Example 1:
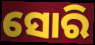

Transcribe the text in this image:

ସୋରି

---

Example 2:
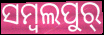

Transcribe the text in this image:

ସମ୍ବଲପୁର୍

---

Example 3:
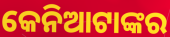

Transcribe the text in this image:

କେନିଆଟାଙ୍କର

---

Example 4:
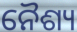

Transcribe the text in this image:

ନୈଶ୍ୟ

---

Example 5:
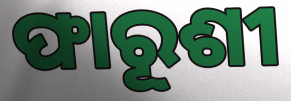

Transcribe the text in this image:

ଫାରୂଶୀ